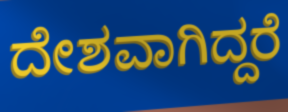
ದೇಶವಾಗಿದ್ದರೆ